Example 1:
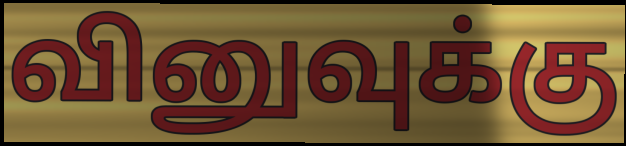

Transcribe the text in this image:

வினுவுக்கு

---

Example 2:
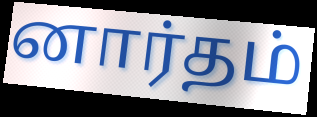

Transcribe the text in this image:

னார்தம்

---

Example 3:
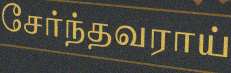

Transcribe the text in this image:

சேர்ந்தவராய்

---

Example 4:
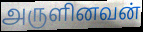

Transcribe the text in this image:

அருளினவன்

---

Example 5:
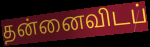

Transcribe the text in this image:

தன்னைவிடப்